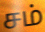
சம்